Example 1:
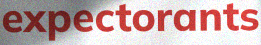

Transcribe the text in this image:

expectorants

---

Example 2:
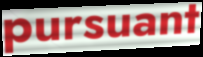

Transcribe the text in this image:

pursuant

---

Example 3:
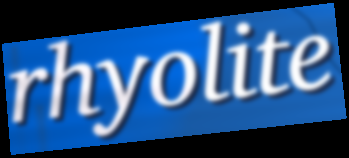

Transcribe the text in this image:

rhyolite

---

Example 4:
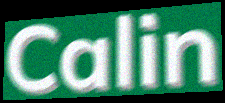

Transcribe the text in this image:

Calin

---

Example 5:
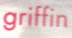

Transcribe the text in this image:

griffin